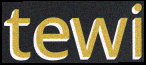
tewi